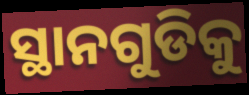
ସ୍ଥାନଗୁଡିକୁ